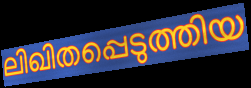
ലിഖിതപ്പെടുത്തിയ